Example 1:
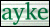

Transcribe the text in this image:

ayke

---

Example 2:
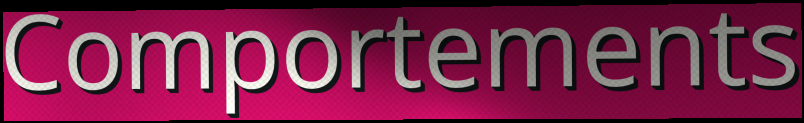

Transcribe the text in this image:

Comportements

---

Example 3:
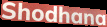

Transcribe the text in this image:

Shodhana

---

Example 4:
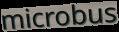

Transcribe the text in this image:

microbus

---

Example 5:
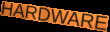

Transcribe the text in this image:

HARDWARE